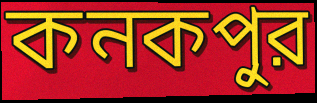
কনকপুর